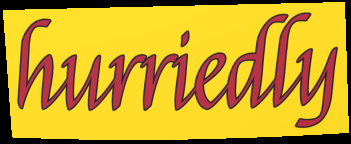
hurriedly